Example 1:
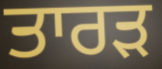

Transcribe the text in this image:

ਤਾਰੜ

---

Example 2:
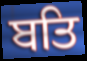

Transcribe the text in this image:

ਬਤਿ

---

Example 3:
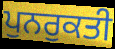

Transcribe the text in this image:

ਪੁਨਰੁਕਤੀ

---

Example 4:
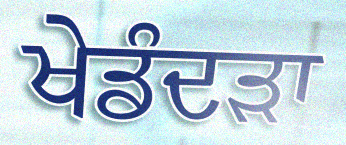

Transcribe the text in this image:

ਖੇਡੰਦੜਾ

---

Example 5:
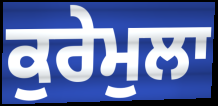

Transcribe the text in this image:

ਕੁਰੇਮੁਲਾ